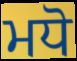
ਮਧੋ